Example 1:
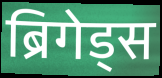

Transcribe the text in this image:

ब्रिगेड्स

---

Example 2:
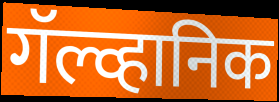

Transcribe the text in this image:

गॅल्व्हानिक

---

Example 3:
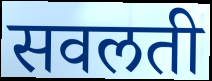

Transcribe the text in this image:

सवलती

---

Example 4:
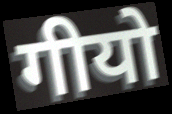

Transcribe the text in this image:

गीयो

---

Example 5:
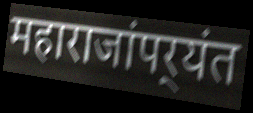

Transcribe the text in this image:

महाराजांपर्यंत